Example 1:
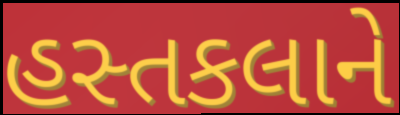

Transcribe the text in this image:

હસ્તકલાને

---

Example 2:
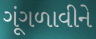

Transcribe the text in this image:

ગૂંગળાવીને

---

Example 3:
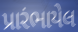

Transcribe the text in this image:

પ્રારંભાયેલ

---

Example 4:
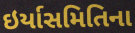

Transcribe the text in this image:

ઇર્યાસમિતિના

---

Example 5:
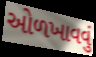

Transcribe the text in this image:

ઓળખાવવું